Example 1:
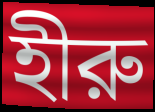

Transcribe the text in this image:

হীরু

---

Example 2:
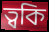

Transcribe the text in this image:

ত্বকি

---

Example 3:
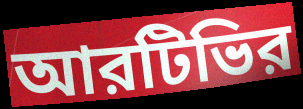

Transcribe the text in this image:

আরটিভির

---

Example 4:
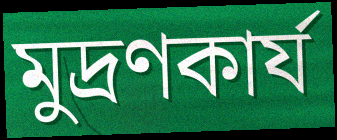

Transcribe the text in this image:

মুদ্রণকার্য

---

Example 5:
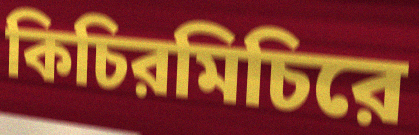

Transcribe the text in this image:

কিচিরমিচিরে